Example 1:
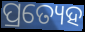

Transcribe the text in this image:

ପ୍ରତ୍ୟେହ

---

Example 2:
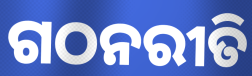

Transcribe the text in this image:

ଗଠନରୀତି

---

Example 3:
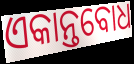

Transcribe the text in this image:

ଏକାନ୍ତବୋଧ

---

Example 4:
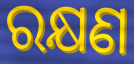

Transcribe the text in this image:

ରକ୍ଷଣ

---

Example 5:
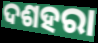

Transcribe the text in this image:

ଦଶହରା